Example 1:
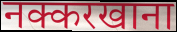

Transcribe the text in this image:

नक्करखाना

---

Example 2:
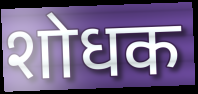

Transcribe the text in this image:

शोधक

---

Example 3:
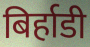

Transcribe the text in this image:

बिर्हाडी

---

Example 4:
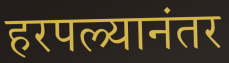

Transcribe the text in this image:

हरपल्यानंतर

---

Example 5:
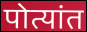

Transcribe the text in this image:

पोत्यांत